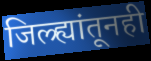
जिल्ह्यांतूनही